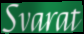
Svarat